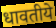
धावतीये